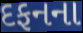
દફનના